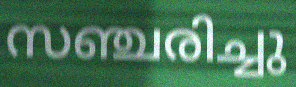
സഞ്ചരിച്ചു